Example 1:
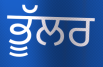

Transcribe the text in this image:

ਭੂੱਲਰ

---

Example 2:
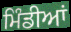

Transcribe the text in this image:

ਮਿੰਡੀਆਂ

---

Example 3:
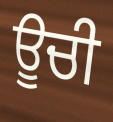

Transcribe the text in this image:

ਊਚੀ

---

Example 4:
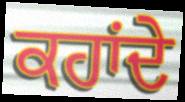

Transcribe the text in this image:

ਕਹਾਂਦੇ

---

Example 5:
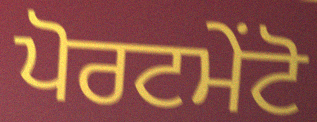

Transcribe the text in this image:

ਪੋਰਟਮੇਂਟੋ